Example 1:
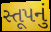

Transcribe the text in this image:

સ્તૂપનું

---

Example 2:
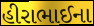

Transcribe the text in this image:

હીરાભાઈના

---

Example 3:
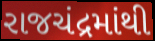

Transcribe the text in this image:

રાજચંદ્રમાંથી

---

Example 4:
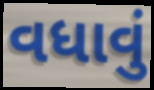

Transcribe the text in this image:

વધાવું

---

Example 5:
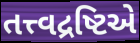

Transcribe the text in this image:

તત્ત્વદ્રષ્ટિએ